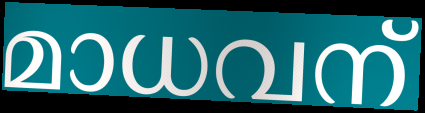
മാധവന്